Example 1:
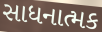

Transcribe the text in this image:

સાધનાત્મક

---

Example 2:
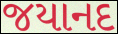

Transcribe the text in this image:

જયાનદ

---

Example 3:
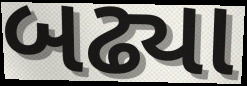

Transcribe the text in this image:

બઢ્યા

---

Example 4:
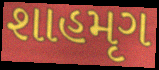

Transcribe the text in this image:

શાહમૃગ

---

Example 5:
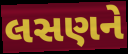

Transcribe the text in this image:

લસણને